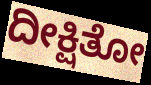
ದೀಕ್ಷಿತೋ